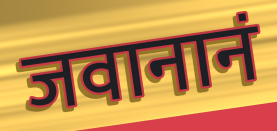
जवानानं